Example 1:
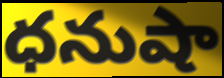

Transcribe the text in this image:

ధనుషా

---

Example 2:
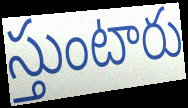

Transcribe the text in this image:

స్తుంటారు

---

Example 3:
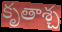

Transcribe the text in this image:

కృతాశ్చ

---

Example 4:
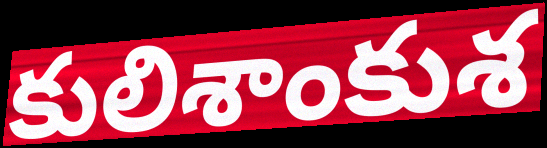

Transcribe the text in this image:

కులిశాంకుశ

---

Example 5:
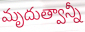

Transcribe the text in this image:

మృదుత్వాన్నీ